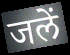
जलें